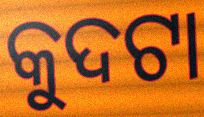
କୁଦଟା